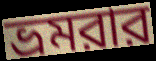
ভ্রমরার